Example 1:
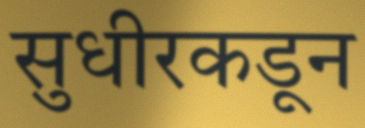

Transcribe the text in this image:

सुधीरकडून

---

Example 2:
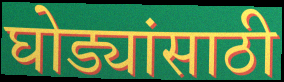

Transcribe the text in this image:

घोड्यांसाठी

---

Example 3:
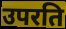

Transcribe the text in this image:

उपरति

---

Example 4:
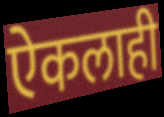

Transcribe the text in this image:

ऐकलाही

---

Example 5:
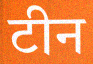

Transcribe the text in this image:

टीन